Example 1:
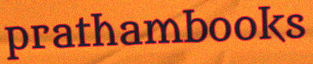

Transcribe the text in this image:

prathambooks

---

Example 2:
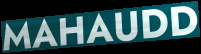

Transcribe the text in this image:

MAHAUDD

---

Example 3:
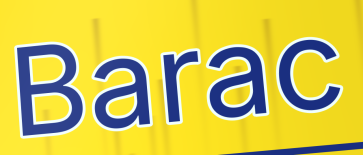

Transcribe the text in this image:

Barac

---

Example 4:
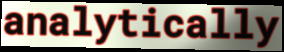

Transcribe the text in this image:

analytically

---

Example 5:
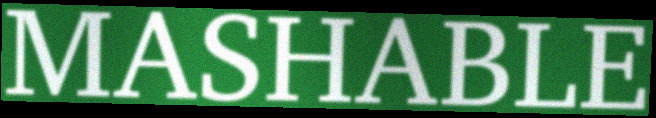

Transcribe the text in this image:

MASHABLE